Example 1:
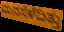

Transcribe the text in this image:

ಮನಸೆಳೆದಿತ್ತು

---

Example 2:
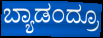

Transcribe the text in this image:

ಬ್ಯಾಡಂದ್ರೂ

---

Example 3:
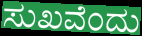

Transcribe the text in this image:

ಸುಖವೆಂದು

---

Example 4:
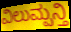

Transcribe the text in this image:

ವಿಲುಮ್ಪನ್ತಿ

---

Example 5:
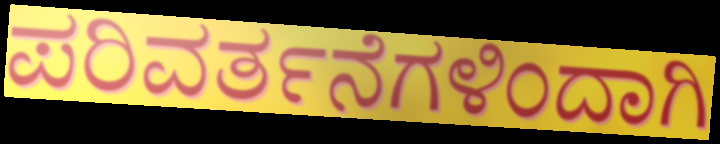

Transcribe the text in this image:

ಪರಿವರ್ತನೆಗಳಿಂದಾಗಿ